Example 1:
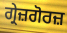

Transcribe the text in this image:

ਗ੍ਰੇਜ਼ਗੋਰਜ਼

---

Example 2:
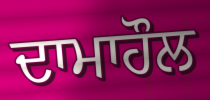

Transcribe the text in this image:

ਦਾਮਾਹੌਲ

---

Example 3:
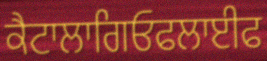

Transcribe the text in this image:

ਕੈਟਾਲਾਗਿਓਫਲਾਈਫ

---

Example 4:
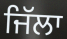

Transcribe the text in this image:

ਜਿੱਲਾ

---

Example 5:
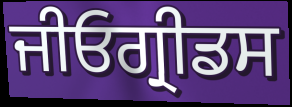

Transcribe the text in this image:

ਜੀਓਗ੍ਰੀਡਸ